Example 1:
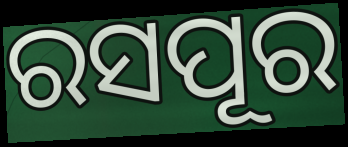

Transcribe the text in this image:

ରସପୂର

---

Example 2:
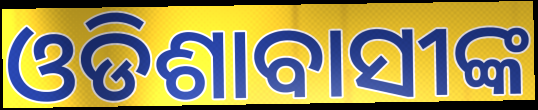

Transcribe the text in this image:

ଓଡିଶାବାସୀଙ୍କ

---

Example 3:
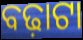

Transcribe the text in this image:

ବଢ଼ାଟା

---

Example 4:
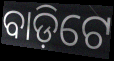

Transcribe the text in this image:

ବାଡ଼ିଟେ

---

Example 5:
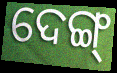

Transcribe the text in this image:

ଦେଙ୍ଗ୍